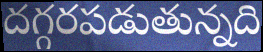
దగ్గరపడుతున్నది